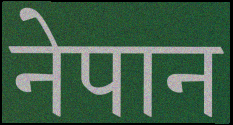
नेपान